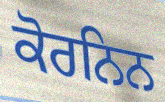
ਕੋਰਨਿਨ